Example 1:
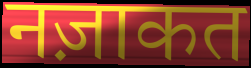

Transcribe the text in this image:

नज़ाकत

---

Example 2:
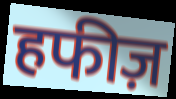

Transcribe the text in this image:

हफीज़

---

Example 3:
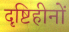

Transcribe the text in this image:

दृष्टिहीनों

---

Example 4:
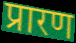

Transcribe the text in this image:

प्रारण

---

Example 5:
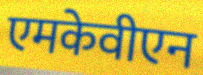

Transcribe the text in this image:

एमकेवीएन